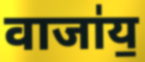
वाजा॑य॒